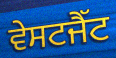
ਵੇਸਟਜੈੱਟ